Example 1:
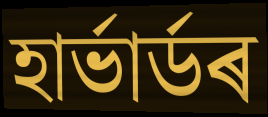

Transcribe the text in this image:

হাৰ্ভাৰ্ডৰ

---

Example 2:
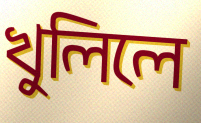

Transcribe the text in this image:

খুলিলে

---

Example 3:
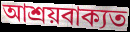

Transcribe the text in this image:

আশ্ৰয়বাক্যত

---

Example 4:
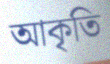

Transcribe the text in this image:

আকৃতি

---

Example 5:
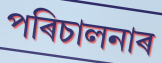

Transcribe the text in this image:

পৰিচালনাৰ